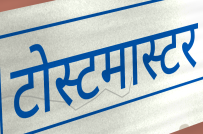
टोस्टमास्टर